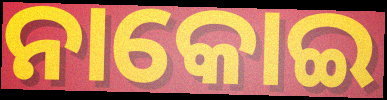
ନାକୋଇ